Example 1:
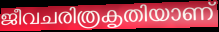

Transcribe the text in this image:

ജീവചരിത്രകൃതിയാണ്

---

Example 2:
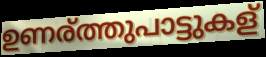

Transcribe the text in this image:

ഉണര്ത്തുപാട്ടുകള്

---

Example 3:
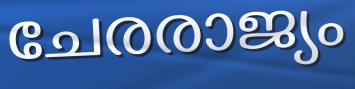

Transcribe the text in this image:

ചേരരാജ്യം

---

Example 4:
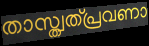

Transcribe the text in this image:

താസ്ത്വത്പ്രവണാ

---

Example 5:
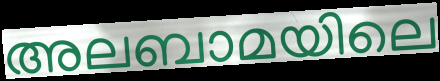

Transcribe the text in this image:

അലബാമയിലെ